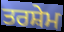
ਤਰਸ਼ੇਮ